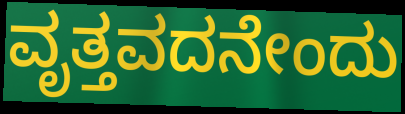
ವೃತ್ತವದನೇಂದು